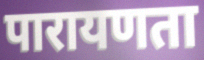
पारायणता